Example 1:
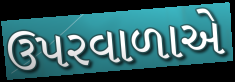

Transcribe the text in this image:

ઉપરવાળાએ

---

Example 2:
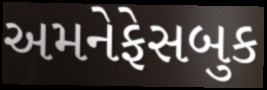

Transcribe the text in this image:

અમનેફેસબુક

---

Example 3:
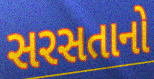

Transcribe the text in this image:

સરસતાનો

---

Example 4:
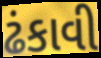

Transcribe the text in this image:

ઢંકાવી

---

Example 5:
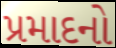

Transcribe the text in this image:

પ્રમાદનો